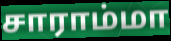
சாராம்மா